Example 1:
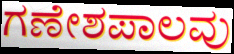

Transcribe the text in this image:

ಗಣೇಶಪಾಲವು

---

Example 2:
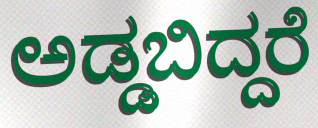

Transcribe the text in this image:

ಅಡ್ಡಬಿದ್ದರೆ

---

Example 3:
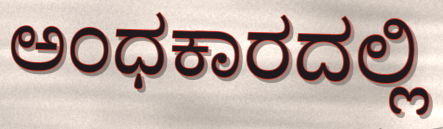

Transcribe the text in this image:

ಅಂಧಕಾರದಲ್ಲಿ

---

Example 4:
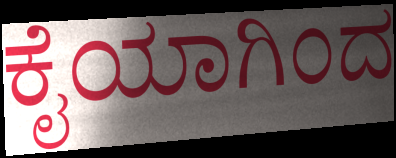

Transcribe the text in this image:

ಕೈಯಾಗಿಂದ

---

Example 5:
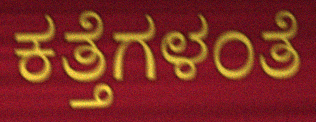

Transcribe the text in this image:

ಕತ್ತೆಗಳಂತೆ